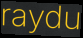
raydu